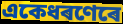
একেধৰণেৰে